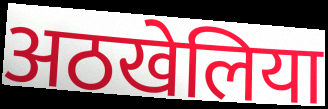
अठखेलिया